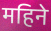
महिने